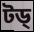
টড্